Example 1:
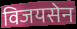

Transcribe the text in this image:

विजयसेन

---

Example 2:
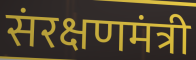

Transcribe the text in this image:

संरक्षणमंत्री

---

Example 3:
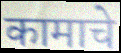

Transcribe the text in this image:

कामाचे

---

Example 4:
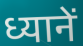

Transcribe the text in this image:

ध्यानें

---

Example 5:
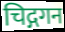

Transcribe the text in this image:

चिद्गगन